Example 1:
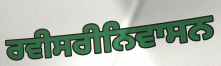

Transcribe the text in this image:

ਰਵੀਸਰੀਨਿਵਾਸਨ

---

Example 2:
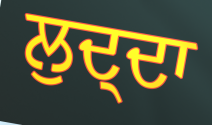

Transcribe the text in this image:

ਲੁਦ੍ਦਾ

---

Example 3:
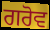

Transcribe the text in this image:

ਗਰੋਵ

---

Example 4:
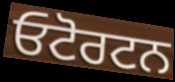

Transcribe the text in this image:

ਓਟੋਰਟਨ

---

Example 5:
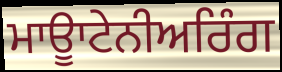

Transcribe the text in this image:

ਮਾਊਾਟੇਨੀਅਰਿੰਗ